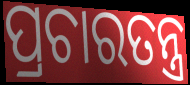
ପ୍ରଚାରତନ୍ତ୍ର